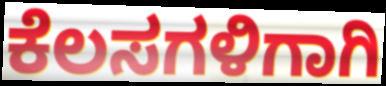
ಕೆಲಸಗಳಿಗಾಗಿ